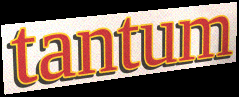
tantum